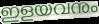
ഇളയവനും